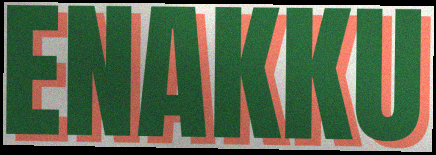
ENAKKU